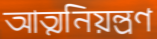
আত্মনিয়ন্ত্রণ